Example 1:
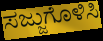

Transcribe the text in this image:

ಸಜ್ಜುಗೊಳಿಸಿ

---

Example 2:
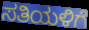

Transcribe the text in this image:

ಸತಿಯಳಿಗೆ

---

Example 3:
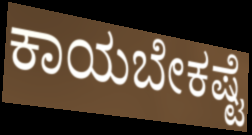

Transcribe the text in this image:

ಕಾಯಬೇಕಷ್ಟೆ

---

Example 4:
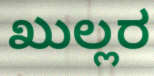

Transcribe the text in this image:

ಖುಲ್ಲರ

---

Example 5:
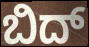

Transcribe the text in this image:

ಬಿದ್